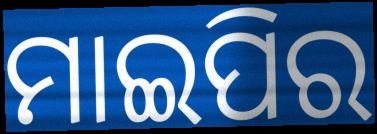
ମାଇପିର